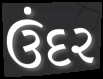
ઉંદર